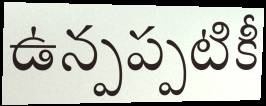
ఉన్పప్పటికీ